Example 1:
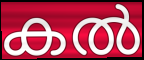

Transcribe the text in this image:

കൽ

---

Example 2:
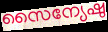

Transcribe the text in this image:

സൈന്യേഷു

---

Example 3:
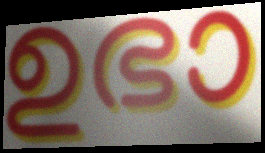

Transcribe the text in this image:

ഉഭാ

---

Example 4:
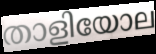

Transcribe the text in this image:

താളിയോല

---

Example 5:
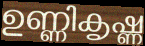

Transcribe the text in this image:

ഉണ്ണികൃഷ്ണ